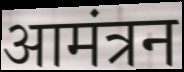
आमंत्रन